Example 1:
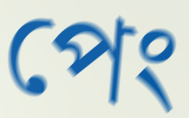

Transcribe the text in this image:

পেং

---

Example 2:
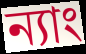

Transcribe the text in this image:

ন্যাং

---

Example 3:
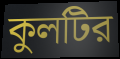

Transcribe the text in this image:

কুলটির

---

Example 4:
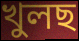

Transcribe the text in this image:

খুলছ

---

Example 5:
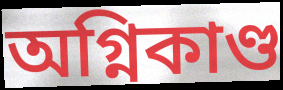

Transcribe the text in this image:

অগ্নিকাণ্ড